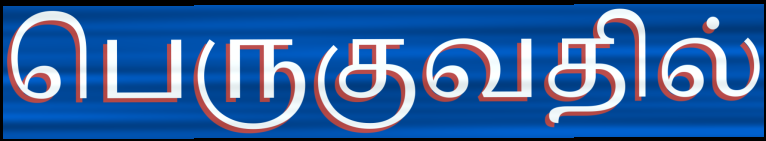
பெருகுவதில்